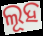
ଲୂହ